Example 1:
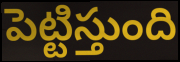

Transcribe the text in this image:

పెట్టిస్తుంది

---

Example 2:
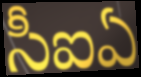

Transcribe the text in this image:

సీఐఏ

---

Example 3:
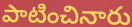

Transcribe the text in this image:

పాటించినారు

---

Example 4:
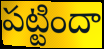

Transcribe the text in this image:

పట్టిందా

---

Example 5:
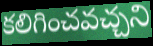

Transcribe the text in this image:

కలిగించవచ్చని